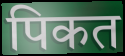
पिकत